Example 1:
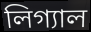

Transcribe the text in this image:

লিগ্যাল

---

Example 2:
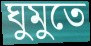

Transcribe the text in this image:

ঘুমুতে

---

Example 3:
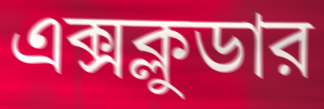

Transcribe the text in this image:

এক্সক্লুডার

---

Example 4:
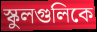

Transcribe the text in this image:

স্কুলগুলিকে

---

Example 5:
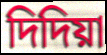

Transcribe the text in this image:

দিদিয়া